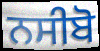
ਨਸੀਬੋ